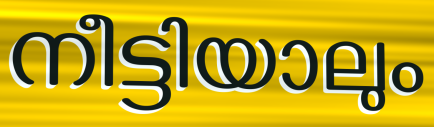
നീട്ടിയാലും